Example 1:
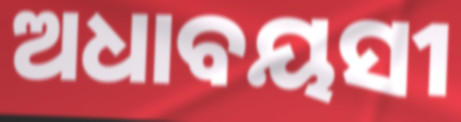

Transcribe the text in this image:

ଅଧାବୟସୀ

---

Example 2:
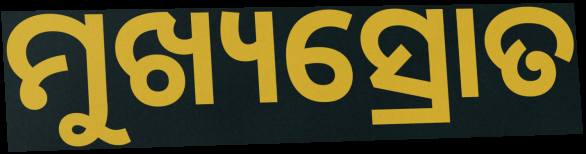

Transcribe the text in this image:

ମୁଖ୍ୟସ୍ରୋତ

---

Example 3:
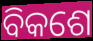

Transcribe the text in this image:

ବିକଶେ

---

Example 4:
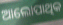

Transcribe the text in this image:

ଆଲୋପାଥିକ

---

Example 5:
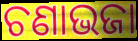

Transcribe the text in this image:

ଚଣାଭଜା